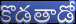
కొడతాడో